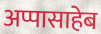
अप्पासाहेब